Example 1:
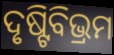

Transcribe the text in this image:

ଦୃଷ୍ଟିବିଭ୍ରମ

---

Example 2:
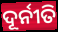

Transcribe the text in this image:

ଦୂର୍ନୀତି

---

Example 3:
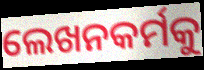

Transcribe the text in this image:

ଲେଖନକର୍ମକୁ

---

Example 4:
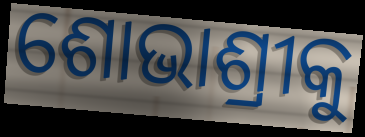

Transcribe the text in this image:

ଶୋଭାଶ୍ରୀକୁ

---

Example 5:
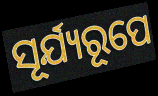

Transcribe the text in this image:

ସୂର୍ଯ୍ୟରୂପେ